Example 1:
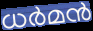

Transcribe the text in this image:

ധർമൻ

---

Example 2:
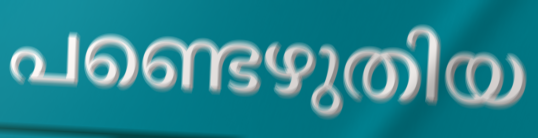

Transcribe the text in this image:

പണ്ടെഴുതിയ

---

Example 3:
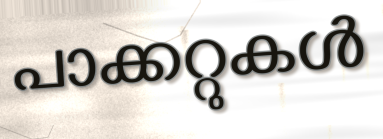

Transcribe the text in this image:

പാക്കറ്റുകൾ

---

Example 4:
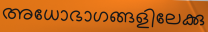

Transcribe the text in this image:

അധോഭാഗങ്ങളിലേക്കു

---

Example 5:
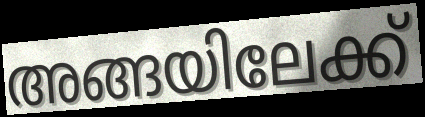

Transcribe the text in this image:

അങ്ങയിലേക്ക്